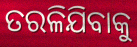
ତରଳିଯିବାକୁ